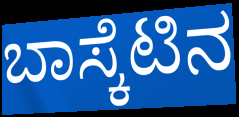
ಬಾಸ್ಕೆಟಿನ